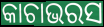
କାଚାଭରସ